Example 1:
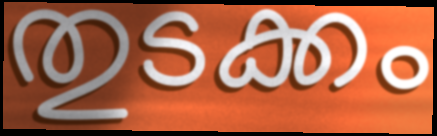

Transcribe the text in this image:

തുടക്കം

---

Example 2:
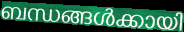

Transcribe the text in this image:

ബന്ധങ്ങൾക്കായി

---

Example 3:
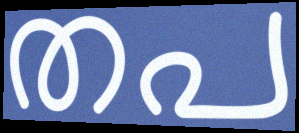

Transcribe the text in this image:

തപ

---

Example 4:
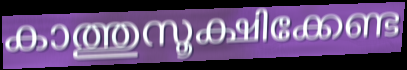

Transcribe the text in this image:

കാത്തുസൂക്ഷിക്കേണ്ട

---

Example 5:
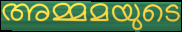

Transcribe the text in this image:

അമ്മമയുടെ